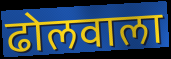
ढोलवाला